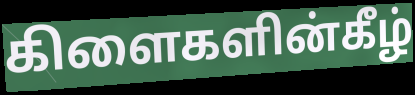
கிளைகளின்கீழ்